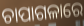
ଚାପାଗଳାରେ